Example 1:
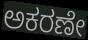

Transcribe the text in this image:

ಅಕರಣೇ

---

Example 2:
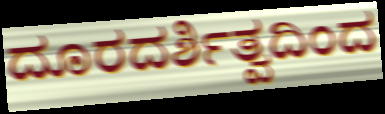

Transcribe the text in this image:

ದೂರದರ್ಶಿತ್ವದಿಂದ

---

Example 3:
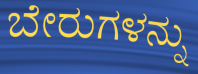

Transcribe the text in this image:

ಬೇರುಗಳನ್ನು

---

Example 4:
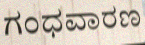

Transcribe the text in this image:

ಗಂಧವಾರಣ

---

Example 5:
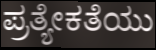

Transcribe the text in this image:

ಪ್ರತ್ಯೇಕತೆಯು